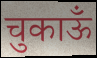
चुकाऊँ